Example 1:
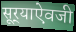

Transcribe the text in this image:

सूर्याऐवजी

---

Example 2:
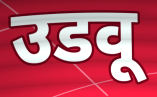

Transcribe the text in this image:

उडवू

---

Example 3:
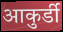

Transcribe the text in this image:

आकुर्डी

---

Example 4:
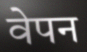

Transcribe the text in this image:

वेपन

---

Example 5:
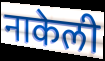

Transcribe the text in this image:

नाकेली